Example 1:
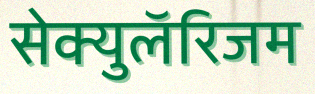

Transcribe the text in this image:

सेक्युलॅरिजम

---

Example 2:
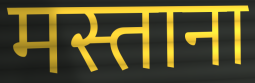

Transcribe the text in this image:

मस्ताना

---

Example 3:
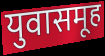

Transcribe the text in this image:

युवासमूह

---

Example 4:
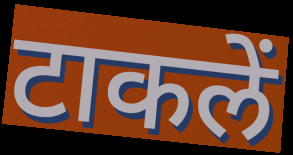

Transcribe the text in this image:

टाकलें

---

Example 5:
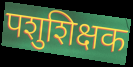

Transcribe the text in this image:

पशुशिक्षक